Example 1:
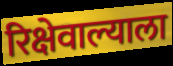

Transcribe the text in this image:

रिक्षेवाल्याला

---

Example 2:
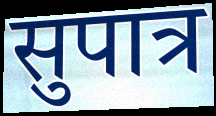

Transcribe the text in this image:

सुपात्र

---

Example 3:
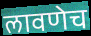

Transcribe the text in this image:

लावणेच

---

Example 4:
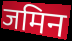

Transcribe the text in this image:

जमिन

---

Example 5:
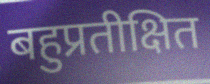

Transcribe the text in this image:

बहुप्रतीक्षित